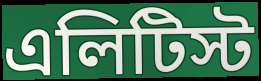
এলিটিস্ট